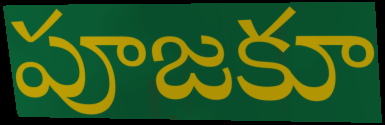
పూజకూ